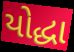
યોદ્ધા